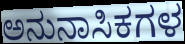
ಅನುನಾಸಿಕಗಳ